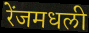
रेंजमधली